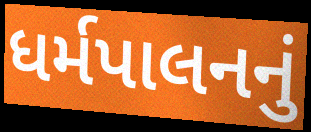
ધર્મપાલનનું